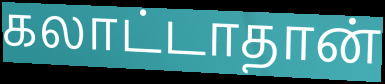
கலாட்டாதான்